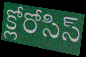
క్లోరోసిస్